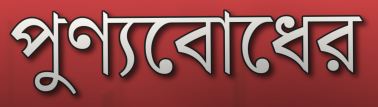
পুণ্যবোধের